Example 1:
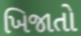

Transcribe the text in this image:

ખિજાતો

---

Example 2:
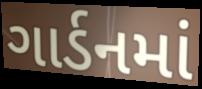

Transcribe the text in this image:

ગાર્ડનમાં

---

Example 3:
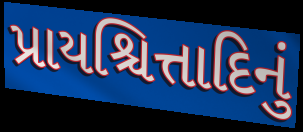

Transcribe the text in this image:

પ્રાયશ્ચિત્તાદિનું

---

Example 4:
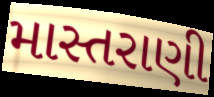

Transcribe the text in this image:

માસ્તરાણી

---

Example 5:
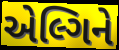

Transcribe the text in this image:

એલ્ગિને